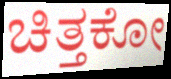
ಚಿತ್ತಕೋ